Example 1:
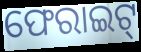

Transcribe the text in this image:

ଫେରାଇଟ୍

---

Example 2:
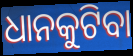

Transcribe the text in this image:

ଧାନକୁଟିବା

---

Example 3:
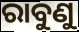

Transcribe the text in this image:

ରାବୁଣୁ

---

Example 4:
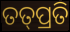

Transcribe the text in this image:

ତତ୍‌ପ୍ରତି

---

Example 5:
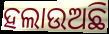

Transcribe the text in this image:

ହଲାଉଅଛି